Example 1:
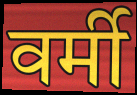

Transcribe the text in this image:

वर्मी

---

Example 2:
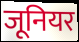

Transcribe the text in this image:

जूनियर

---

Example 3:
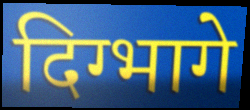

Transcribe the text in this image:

दिग्भागे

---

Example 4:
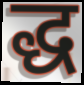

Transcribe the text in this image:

द्ध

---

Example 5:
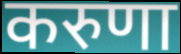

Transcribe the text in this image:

करुणा